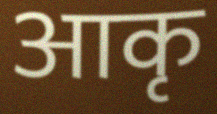
आकृ